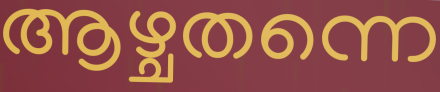
ആഴ്ചതന്നെ